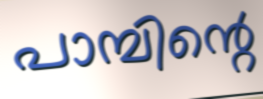
പാമ്പിന്റെ